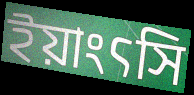
ইয়াংৎসি